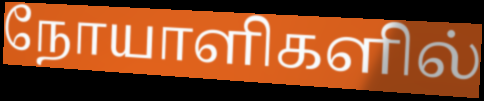
நோயாளிகளில்